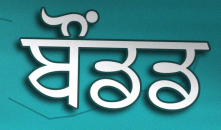
ਬੌਂਡਡ